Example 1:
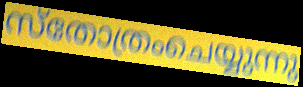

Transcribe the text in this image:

സ്തോത്രംചെയ്യുന്നു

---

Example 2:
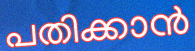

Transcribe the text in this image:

പതിക്കാൻ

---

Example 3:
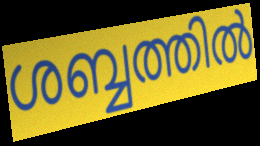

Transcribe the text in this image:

ശബ്ബത്തിൽ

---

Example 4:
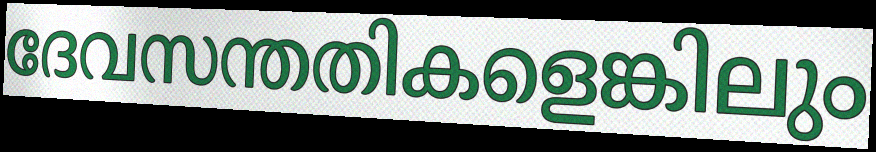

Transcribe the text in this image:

ദേവസന്തതികളെങ്കിലും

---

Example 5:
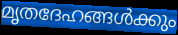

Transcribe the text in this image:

മൃതദേഹങ്ങൾക്കും